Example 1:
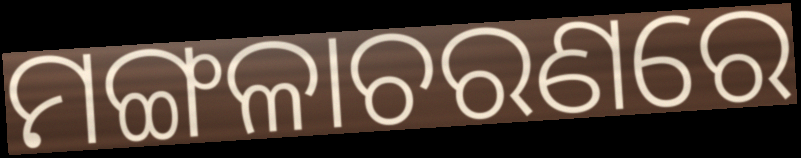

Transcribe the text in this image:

ମଙ୍ଗଳାଚରଣରେ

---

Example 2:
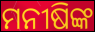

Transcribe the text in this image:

ମନୀଷିଙ୍କ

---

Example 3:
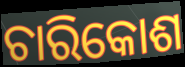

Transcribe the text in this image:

ଚାରିକୋଶ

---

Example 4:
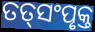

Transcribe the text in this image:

ତତ୍‌ସଂପୃକ୍ତ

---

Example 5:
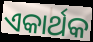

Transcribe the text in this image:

ଏକାର୍ଥକ